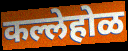
कल्लेहोळ